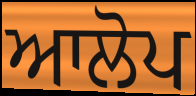
ਆਲੋਪ